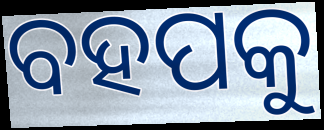
ବହପକୁ